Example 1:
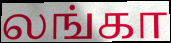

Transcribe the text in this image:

லங்கா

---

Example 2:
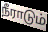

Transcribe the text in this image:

நீராடும்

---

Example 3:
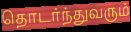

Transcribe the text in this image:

தொடர்ந்துவரும்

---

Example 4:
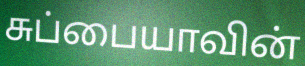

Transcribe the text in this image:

சுப்பையாவின்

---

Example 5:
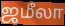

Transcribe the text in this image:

ஜமீலா